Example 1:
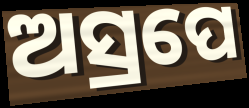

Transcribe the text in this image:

ଅସ୍ରପେ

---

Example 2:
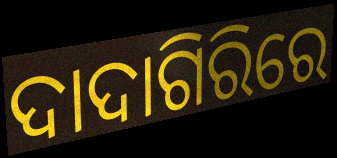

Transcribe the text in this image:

ଦାଦାଗିରିରେ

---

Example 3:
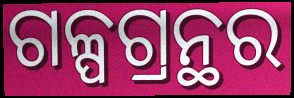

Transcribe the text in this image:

ଗଳ୍ପଗ୍ରନ୍ଥର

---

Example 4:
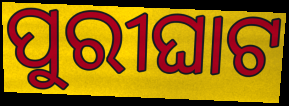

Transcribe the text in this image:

ପୁରୀଘାଟ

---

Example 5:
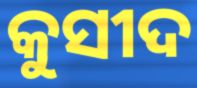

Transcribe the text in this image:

କୁସୀଦ